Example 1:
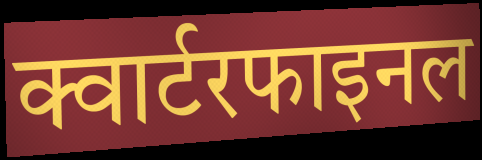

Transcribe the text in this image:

क्वार्टरफाइनल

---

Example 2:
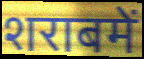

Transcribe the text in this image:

शराबमें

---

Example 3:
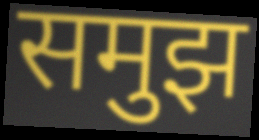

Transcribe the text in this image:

समुझ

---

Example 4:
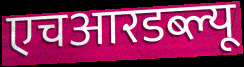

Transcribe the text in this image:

एचआरडब्ल्यू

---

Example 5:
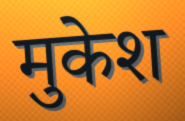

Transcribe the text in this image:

मुकेश